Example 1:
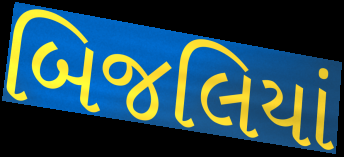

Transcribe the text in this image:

બિજલિયાં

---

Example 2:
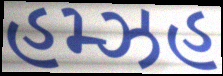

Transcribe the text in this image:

હમ્ઝહ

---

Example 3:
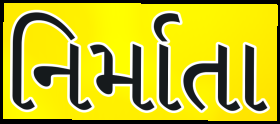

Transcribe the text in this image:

નિર્માતા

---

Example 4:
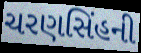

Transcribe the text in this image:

ચરણસિંહની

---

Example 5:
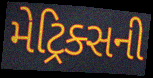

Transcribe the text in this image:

મેટ્રિક્સની